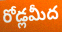
రోడ్లమీద